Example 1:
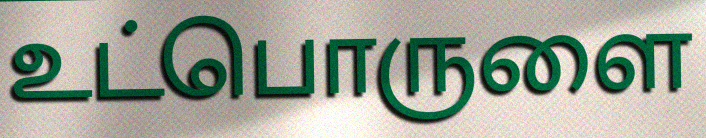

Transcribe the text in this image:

உட்பொருளை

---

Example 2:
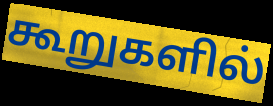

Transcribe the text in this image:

கூறுகளில்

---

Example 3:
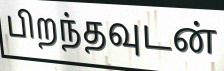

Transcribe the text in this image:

பிறந்தவுடன்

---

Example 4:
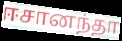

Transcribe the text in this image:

ஈசானந்தா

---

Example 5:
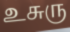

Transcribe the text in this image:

உசுரு